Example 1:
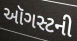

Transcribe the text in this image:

ઑગસ્ટની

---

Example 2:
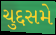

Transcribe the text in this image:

ચુદ્દસમે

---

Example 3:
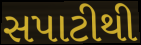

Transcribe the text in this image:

સપાટીથી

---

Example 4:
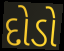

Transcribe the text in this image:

દોડો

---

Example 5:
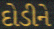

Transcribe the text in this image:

દોડીને